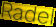
Radel